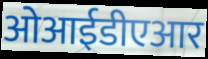
ओआईडीएआर